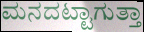
ಮನದಟ್ಟಾಗುತ್ತಾ